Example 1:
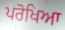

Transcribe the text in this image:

ਪਰੋਖਿਆ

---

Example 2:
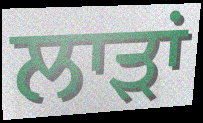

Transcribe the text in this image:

ਲਾੜਾਂ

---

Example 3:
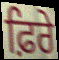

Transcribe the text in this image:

ਫ਼ਿਰੇ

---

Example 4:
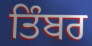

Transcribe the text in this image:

ਤਿੰਬਰ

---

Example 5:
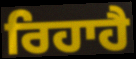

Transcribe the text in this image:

ਰਿਹਾਹੈ